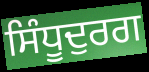
ਸਿੰਧੂਦੁਰਗ